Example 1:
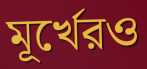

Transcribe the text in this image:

মূর্খেরও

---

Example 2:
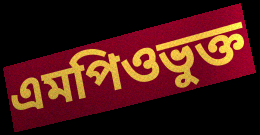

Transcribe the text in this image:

এমপিওভুক্ত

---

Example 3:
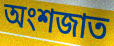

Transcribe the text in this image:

অংশজাত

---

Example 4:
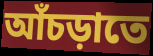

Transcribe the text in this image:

আঁচড়াতে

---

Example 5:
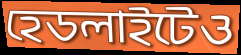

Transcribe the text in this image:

হেডলাইটেও